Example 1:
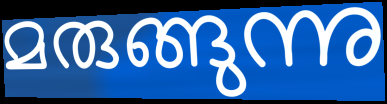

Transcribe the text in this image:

മരുങ്ങുന്നു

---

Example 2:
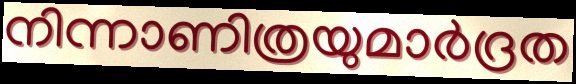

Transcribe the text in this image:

നിന്നാണിത്രയുമാർദ്രത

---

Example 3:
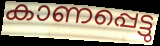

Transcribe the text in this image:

കാണപ്പെട്ടു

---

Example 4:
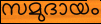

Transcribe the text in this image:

സമുദായം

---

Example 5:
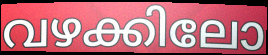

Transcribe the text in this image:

വഴക്കിലോ